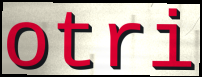
otri